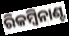
ରିକମ୍ବିନାଣ୍ଟ